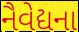
નૈવેદ્યના